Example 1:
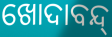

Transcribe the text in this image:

ଖୋଦାବନ୍ଦ୍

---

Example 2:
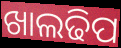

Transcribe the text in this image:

ଖାଲଢିପ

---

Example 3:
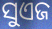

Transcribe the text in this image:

ସୁଏଜ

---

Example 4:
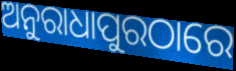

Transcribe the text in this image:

ଅନୁରାଧାପୁରଠାରେ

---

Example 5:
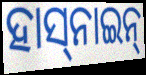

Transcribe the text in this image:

ହାସ୍‌ନାଇନ୍